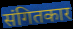
संगितकार